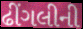
ઢીંગલીની